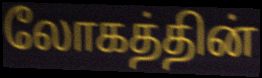
லோகத்தின்